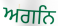
ਅਗਨਿ